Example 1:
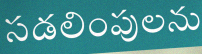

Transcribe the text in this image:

సడలింపులను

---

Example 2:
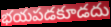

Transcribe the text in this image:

భయపడకూడదు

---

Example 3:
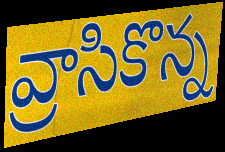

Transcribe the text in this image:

వ్రాసికొన్న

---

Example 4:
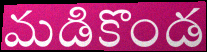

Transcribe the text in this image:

మడికొండ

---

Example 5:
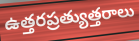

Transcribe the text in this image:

ఉత్తరప్రత్యుత్తరాలు